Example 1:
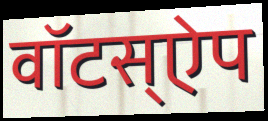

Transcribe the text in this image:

वॉटस्ऐप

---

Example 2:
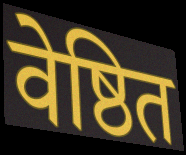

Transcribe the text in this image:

वेष्ठित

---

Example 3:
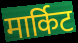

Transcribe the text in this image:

मार्किट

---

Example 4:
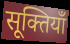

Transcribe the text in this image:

सूक्तियाँ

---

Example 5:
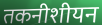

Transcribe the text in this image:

तकनीशीयन